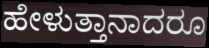
ಹೇಳುತ್ತಾನಾದರೂ